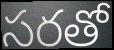
సరతో